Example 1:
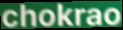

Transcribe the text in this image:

chokrao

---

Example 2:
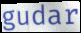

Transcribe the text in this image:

gudar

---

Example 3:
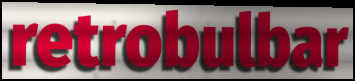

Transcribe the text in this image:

retrobulbar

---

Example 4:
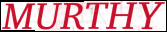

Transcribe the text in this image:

MURTHY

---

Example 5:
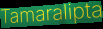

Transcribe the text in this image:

Tamaralipta